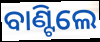
ବାଣ୍ଟିଲେ